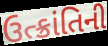
ઉત્ક્રાંતિની